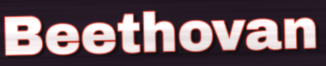
Beethovan